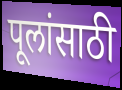
पूलांसाठी